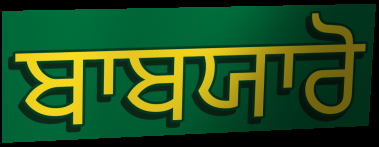
ਬਾਬਯਾਰੋ